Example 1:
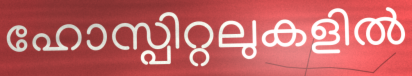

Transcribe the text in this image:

ഹോസ്പിറ്റലുകളിൽ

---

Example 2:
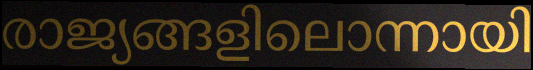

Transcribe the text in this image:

രാജ്യങ്ങളിലൊന്നായി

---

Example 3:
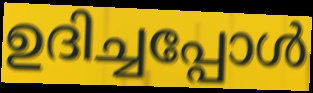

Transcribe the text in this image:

ഉദിച്ചപ്പോൾ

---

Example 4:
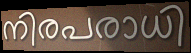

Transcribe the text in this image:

നിരപരാധി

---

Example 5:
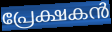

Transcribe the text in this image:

പ്രേക്ഷകൻ